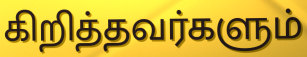
கிறித்தவர்களும்